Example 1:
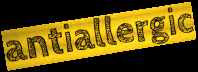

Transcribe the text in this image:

antiallergic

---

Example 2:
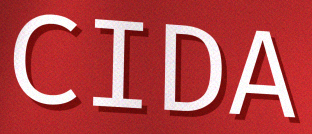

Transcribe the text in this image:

CIDA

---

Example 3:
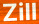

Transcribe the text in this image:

Zill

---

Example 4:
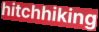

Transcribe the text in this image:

hitchhiking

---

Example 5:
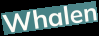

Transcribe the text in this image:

Whalen